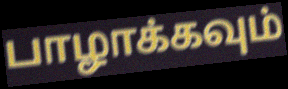
பாழாக்கவும்